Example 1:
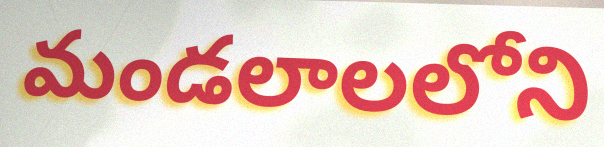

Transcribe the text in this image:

మండలాలలోని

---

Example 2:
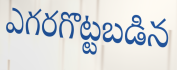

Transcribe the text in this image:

ఎగరగొట్టబడిన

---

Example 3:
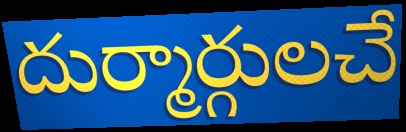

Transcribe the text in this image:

దుర్మార్గులచే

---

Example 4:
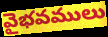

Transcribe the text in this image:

వైభవములు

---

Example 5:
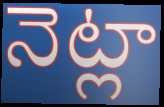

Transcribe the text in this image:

నెట్లా